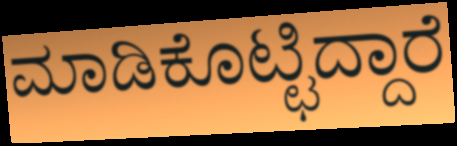
ಮಾಡಿಕೊಟ್ಟಿದ್ದಾರೆ